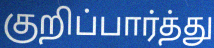
குறிப்பார்த்து